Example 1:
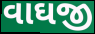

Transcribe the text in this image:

વાઘજી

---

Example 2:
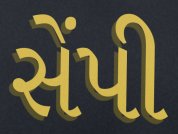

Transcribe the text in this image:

સેંપી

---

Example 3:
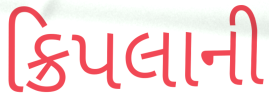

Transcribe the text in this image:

ક્રિપલાની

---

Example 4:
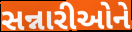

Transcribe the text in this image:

સન્નારીઓને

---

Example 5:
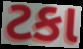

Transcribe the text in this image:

ટકા